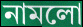
নামলো